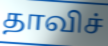
தாவிச்